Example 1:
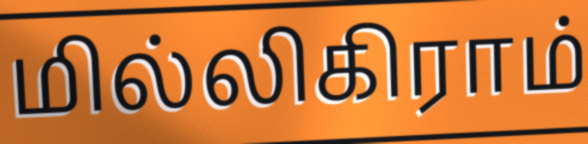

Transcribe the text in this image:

மில்லிகிராம்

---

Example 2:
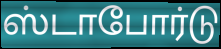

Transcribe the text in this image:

ஸ்டாபோர்டு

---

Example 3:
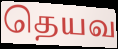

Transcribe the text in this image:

தெயவ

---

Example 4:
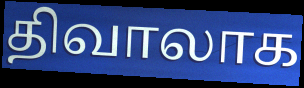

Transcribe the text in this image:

திவாலாக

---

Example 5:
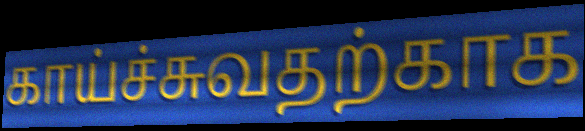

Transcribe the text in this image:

காய்ச்சுவதற்காக